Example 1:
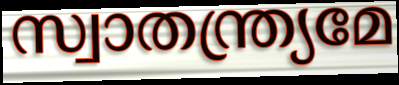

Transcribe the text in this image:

സ്വാതന്ത്ര്യമേ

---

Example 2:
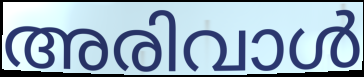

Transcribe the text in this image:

അരിവാൾ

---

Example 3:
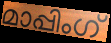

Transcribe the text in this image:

മാപ്പിംഗ്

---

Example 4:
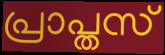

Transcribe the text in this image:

പ്രാപ്തസ്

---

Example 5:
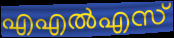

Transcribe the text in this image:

എഎൽഎസ്